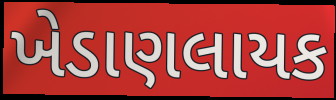
ખેડાણલાયક